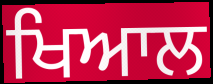
ਖਿਆਲ